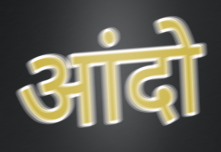
आंदो